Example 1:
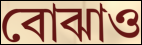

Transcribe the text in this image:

বোঝাও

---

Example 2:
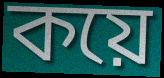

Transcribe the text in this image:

কয়ে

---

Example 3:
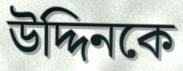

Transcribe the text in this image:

উদ্দিনকে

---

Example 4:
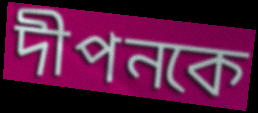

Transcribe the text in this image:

দীপনকে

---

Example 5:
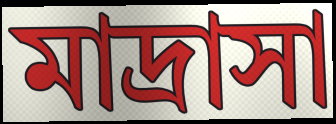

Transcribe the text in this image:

মাদ্রাসা